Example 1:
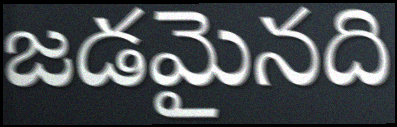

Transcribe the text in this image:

జడమైనది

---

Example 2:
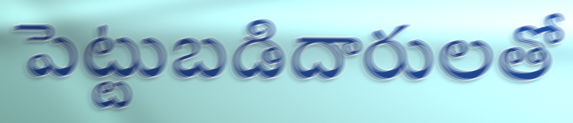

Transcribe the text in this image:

పెట్టుబడిదారులతో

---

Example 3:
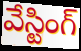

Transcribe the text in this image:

వేస్టింగ్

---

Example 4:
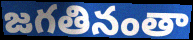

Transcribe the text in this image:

జగతినంతా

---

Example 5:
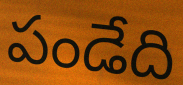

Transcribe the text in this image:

పండేది